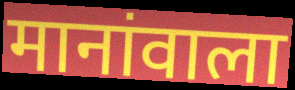
मानांवाला